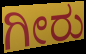
ಗೀರು